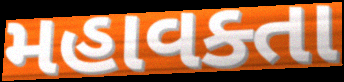
મહાવક્તા